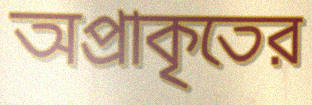
অপ্রাকৃতের